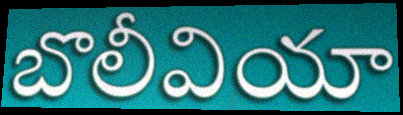
బొలీవియా